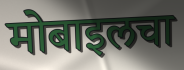
मोबाइलचा